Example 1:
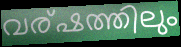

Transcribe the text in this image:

വര്ഷത്തിലും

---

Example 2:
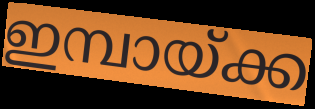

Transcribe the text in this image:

ഇമ്പായ്ക്ക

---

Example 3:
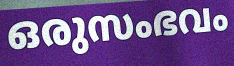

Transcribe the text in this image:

ഒരുസംഭവം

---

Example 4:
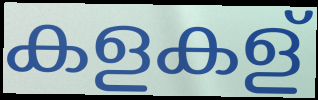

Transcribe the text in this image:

കളകള്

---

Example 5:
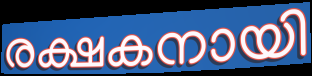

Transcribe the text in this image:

രക്ഷകനായി